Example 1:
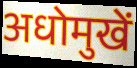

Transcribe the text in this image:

अधोमुखें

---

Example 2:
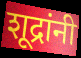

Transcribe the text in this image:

शूद्रांनी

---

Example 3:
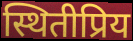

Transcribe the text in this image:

स्थितीप्रिय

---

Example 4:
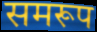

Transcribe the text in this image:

समरूप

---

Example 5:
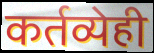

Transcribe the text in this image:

कर्तव्येही